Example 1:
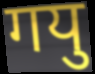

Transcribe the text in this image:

गयु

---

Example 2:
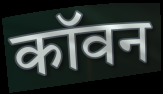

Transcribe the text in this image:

कॉवन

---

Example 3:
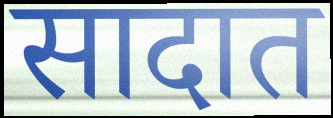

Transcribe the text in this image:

सादात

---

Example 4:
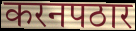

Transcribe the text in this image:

करनपठार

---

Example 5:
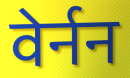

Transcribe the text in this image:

वेर्नन